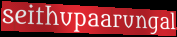
seithupaarungal